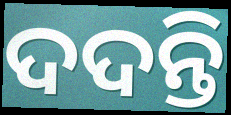
ଦଦନ୍ତି